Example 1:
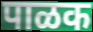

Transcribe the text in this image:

पाळक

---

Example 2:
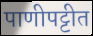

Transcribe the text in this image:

पाणीपट्टीत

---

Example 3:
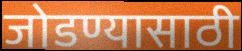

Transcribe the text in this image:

जोडण्यासाठी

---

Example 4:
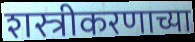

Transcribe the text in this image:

शस्त्रीकरणाच्या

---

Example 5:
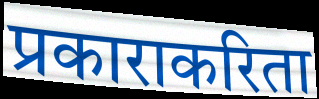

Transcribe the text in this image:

प्रकाराकरिता